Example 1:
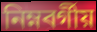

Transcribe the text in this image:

নিম্নবর্গীয়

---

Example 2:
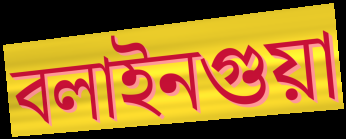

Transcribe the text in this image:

বলাইনগুয়া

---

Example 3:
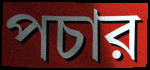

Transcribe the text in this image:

পচার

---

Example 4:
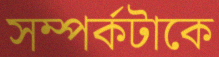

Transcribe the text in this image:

সম্পর্কটাকে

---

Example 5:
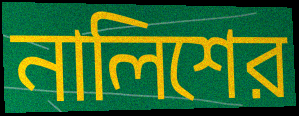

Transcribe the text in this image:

নালিশের